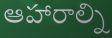
ఆహారాల్ని